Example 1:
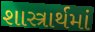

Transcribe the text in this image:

શાસ્ત્રાર્થમાં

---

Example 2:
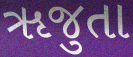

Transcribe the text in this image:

ૠજુતા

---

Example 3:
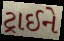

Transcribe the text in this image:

ટ્રાઈને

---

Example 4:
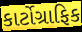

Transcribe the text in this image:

કાર્ટોગ્રાફિક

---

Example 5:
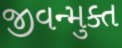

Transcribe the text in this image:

જીવન્મુક્ત